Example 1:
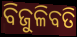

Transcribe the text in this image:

ବିଜୁଳିବତି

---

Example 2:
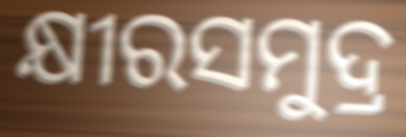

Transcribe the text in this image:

କ୍ଷୀରସମୁଦ୍ର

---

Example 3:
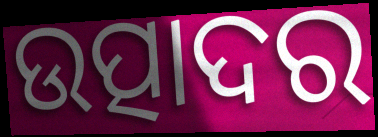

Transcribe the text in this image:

ଉତ୍ପାଦର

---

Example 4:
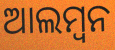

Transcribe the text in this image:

ଆଲମ୍ୱନ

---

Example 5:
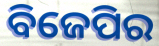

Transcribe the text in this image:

ବିଜେପିର